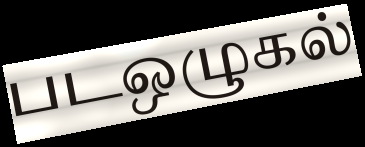
படஒழுகல்